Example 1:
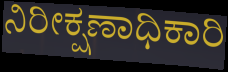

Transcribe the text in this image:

ನಿರೀಕ್ಷಣಾಧಿಕಾರಿ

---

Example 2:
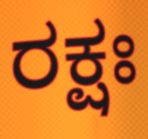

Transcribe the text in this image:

ರಕ್ಷಃ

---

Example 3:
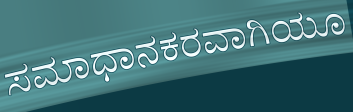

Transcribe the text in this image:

ಸಮಾಧಾನಕರವಾಗಿಯೂ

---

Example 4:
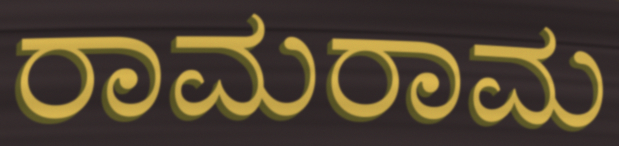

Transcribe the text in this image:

ರಾಮರಾಮ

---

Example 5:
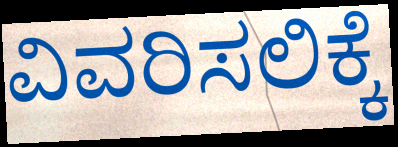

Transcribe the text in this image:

ವಿವರಿಸಲಿಕ್ಕೆ